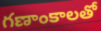
గణాంకాలతో